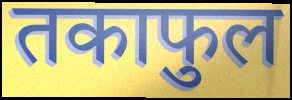
तकाफुल